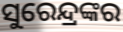
ସୁରେନ୍ଦ୍ରଙ୍କର